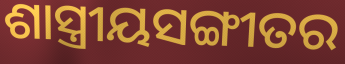
ଶାସ୍ତ୍ରୀୟସଙ୍ଗୀତର